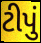
ટીપું